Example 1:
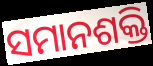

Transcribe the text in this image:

ସମାନଶକ୍ତି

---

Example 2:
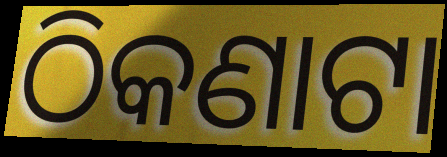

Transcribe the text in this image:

ଠିକଣାଟା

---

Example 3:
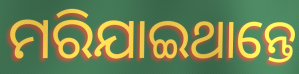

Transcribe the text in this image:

ମରିଯାଇଥାନ୍ତେ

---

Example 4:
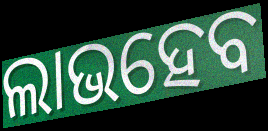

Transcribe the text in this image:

ଲାଭହେବ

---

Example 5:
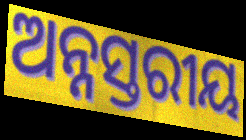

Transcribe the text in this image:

ଅନ୍ନସ୍ତରୀୟ